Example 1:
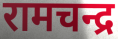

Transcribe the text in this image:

रामचन्द्र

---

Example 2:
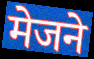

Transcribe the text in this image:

मेजने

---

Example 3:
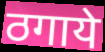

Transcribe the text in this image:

ठगाये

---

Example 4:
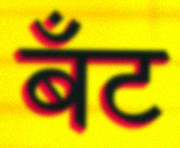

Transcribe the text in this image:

बँट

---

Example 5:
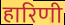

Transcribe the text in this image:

हारिणी